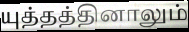
யுத்தத்தினாலும்